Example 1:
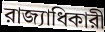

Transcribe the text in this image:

রাজ্যাধিকারী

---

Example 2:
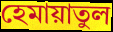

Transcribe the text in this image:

হেমায়াতুল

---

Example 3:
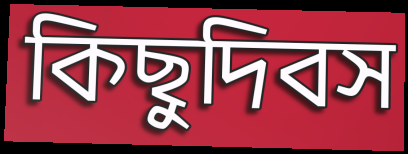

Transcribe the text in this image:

কিছুদিবস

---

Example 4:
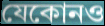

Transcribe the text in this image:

যেকোনও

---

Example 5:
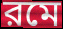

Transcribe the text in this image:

রমে